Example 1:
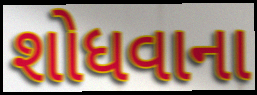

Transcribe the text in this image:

શોધવાના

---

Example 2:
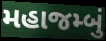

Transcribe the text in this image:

મહાજમ્બું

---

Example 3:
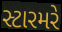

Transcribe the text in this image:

સ્ટારમરે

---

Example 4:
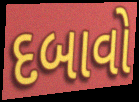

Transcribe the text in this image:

દબાવો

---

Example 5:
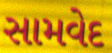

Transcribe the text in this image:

સામવેદ